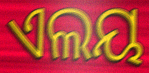
ଏଲୟ